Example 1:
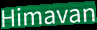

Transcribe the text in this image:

Himavan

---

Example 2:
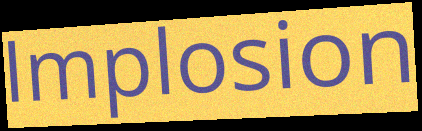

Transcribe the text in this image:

Implosion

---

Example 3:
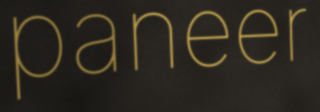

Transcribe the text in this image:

paneer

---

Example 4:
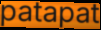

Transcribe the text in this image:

patapat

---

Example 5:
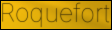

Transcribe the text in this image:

Roquefort